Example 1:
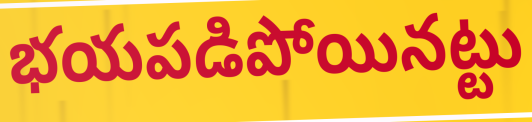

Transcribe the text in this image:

భయపడిపోయినట్టు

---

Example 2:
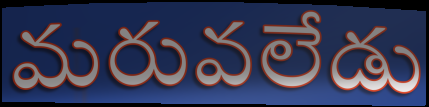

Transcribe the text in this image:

మరువలేడు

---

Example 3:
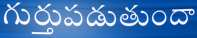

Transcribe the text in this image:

గుర్తుపడుతుందా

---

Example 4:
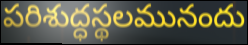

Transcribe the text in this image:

పరిశుద్ధస్థలమునందు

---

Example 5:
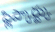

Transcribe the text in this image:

ఫ్లిప్కార్ట్కు